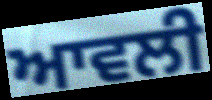
ਆਵਲੀ